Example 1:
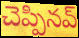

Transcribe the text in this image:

చెప్పినవ్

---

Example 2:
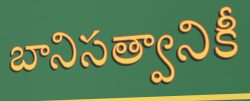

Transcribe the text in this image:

బానిసత్వానికీ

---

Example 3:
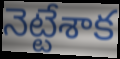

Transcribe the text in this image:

నెట్టేశాక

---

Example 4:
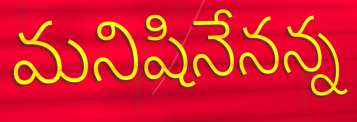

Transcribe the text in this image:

మనిషినేనన్న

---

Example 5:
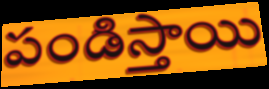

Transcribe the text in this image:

పండిస్తాయి